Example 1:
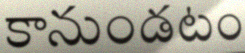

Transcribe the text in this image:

కానుండటం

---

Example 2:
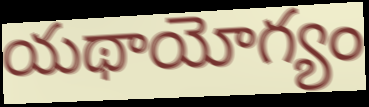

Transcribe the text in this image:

యథాయోగ్యం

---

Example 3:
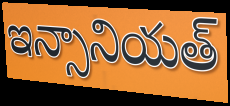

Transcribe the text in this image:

ఇన్సానియత్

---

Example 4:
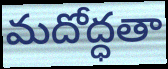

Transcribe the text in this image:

మదోద్ధతా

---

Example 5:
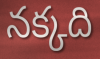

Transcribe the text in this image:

నక్కది